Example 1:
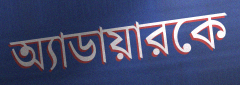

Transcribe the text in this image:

অ্যাডায়ারকে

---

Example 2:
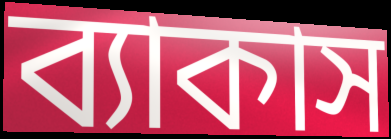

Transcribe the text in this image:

ব্যাকাস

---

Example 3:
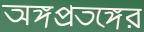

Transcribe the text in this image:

অঙ্গপ্রতঙ্গের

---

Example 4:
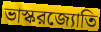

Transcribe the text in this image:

ভাস্করজ্যোতি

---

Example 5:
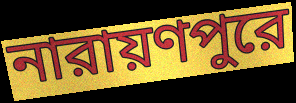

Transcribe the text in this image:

নারায়ণপুরে